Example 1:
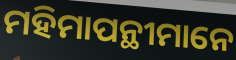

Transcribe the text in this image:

ମହିମାପନ୍ଥୀମାନେ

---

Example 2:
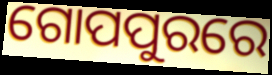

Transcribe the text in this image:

ଗୋପପୁରରେ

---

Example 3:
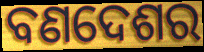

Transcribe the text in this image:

ବଣଦେଶର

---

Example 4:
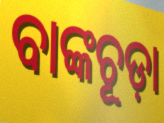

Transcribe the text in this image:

ବାଙ୍କଚୂଡ଼ା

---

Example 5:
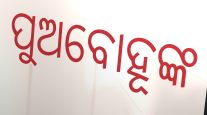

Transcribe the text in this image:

ପୁଅବୋହୂଙ୍କ